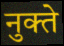
नुक्ते